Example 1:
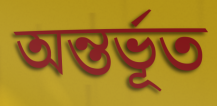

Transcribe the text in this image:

অন্তর্ভূত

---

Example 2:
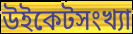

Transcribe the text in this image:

উইকেটসংখ্যা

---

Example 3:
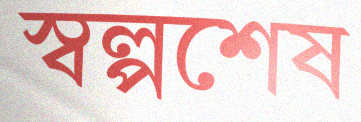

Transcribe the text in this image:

স্বল্পশেষ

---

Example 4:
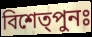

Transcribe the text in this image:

বিশেত্পুনঃ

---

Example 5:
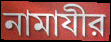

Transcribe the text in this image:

নামাযীর